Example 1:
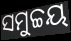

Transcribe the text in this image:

ସମୁଚ୍ଚୟ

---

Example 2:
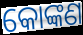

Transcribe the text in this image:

କୋଙ୍କଣ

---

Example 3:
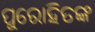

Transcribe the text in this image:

ପୁରୋହିତଙ୍କ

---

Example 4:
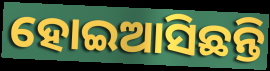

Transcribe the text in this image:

ହୋଇଆସିଛନ୍ତି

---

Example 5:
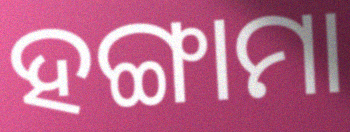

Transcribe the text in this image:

ହଙ୍ଗାମା